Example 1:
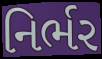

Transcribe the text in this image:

નિર્ભર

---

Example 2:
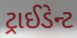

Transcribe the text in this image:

ટ્રાઈડેન્ટ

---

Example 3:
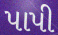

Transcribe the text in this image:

પાપી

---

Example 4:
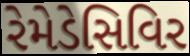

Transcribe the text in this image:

રેમેડેસિવિર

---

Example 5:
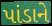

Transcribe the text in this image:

પાંડાને